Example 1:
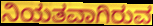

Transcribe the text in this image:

ನಿಯತವಾಗಿರುವ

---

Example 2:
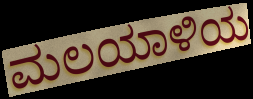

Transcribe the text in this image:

ಮಲಯಾಳಿಯ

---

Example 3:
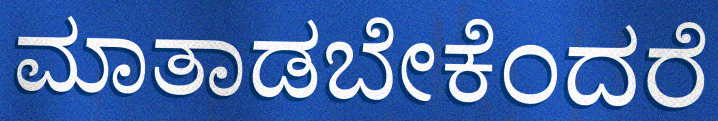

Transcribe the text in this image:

ಮಾತಾಡಬೇಕೆಂದರೆ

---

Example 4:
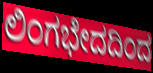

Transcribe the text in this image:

ಲಿಂಗಭೇದದಿಂದ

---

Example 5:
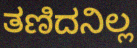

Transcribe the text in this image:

ತಣಿದನಿಲ್ಲ